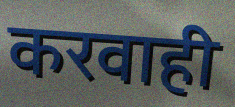
करवाही